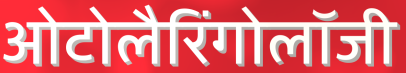
ओटोलैरिंगोलॉजी